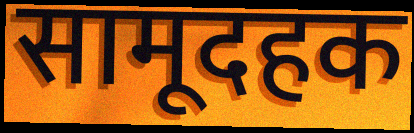
सामूदहक